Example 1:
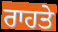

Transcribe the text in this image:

ਰਾਹਤੇ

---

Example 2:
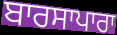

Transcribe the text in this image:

ਬਾਰਸਾਪਾਰਾ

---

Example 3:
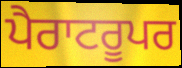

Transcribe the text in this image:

ਪੈਰਾਟਰੂਪਰ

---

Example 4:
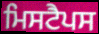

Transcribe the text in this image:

ਮਿਸਟੈਪਸ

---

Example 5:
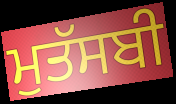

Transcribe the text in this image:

ਮੁਤੱਸਬੀ